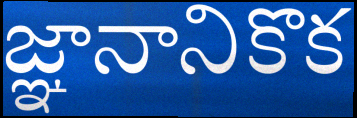
జ్ఞానానికొక